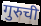
गुरुची